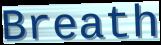
Breath